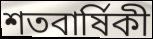
শতবাৰ্ষিকী